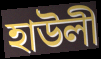
হাউলী